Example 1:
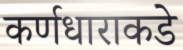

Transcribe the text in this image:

कर्णधाराकडे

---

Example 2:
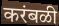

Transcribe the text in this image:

करंबळी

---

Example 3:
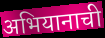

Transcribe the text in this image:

अभियानाची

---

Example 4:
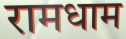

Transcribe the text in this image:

रामधाम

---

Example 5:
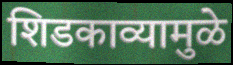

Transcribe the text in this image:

शिडकाव्यामुळे